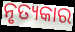
ନୃତ୍ୟକାର